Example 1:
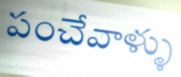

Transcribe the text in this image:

పంచేవాళ్ళు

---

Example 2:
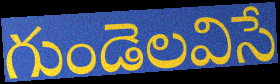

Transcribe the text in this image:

గుండెలవిసే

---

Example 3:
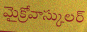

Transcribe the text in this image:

మైక్రోవాస్కులర్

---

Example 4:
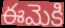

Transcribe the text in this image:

ఈమెకి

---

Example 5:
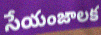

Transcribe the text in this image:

సేయంజాలక